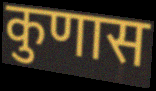
कुणास